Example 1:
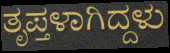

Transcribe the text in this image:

ತೃಪ್ತಳಾಗಿದ್ದಳು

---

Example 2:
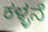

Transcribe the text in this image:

ಕಳ್ಳನೆ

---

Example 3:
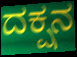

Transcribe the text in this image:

ದಕ್ಷನ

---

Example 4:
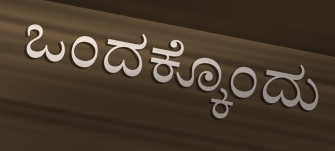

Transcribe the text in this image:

ಒಂದಕ್ಕೊಂದು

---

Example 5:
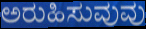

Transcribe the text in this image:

ಅರುಹಿಸುವುವು